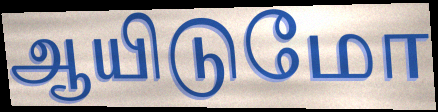
ஆயிடுமோ